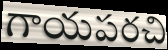
గాయపరచి